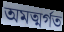
অমত্মর্গত